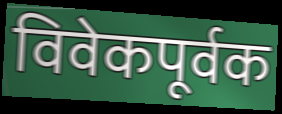
विवेकपूर्वक